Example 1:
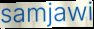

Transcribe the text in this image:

samjawi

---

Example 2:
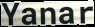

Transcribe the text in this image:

Yanar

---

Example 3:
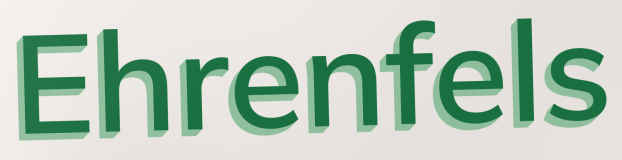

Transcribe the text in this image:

Ehrenfels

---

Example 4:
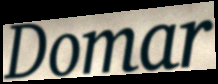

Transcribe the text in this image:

Domar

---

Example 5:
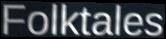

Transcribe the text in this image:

Folktales